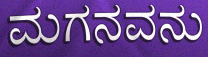
ಮಗನವನು